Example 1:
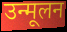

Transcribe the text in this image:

उन्मूलन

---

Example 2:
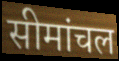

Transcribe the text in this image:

सीमांचल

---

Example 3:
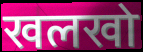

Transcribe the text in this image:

खलखो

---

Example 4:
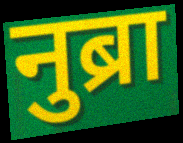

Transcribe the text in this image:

नुब्रा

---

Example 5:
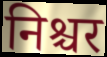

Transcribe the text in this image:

निश्चर